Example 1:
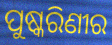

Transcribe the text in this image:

ପୁଷ୍କରିଣୀର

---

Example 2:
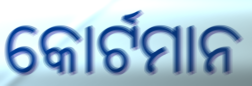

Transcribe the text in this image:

କୋର୍ଟମାନ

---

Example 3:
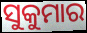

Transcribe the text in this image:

ସୁକୁମାର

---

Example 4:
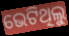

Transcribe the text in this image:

ଭେଟିଥିଲୁ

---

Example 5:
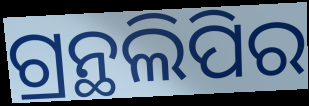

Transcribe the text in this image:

ଗ୍ରନ୍ଥଲିପିର